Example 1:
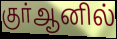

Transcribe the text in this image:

குர்ஆனில்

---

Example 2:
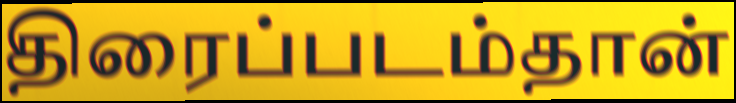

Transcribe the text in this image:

திரைப்படம்தான்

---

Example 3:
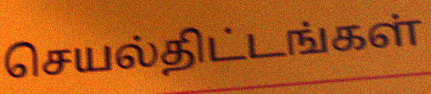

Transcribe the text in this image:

செயல்திட்டங்கள்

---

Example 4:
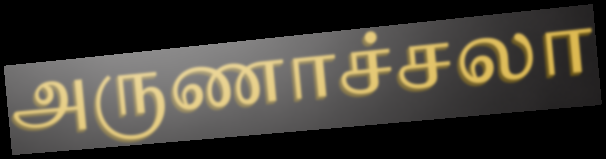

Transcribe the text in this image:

அருணாச்சலா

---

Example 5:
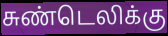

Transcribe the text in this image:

சுண்டெலிக்கு